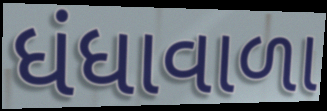
ધંધાવાળા